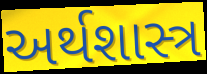
અર્થશાસ્ત્ર